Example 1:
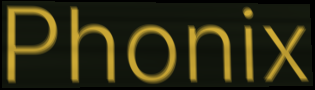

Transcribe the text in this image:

Phonix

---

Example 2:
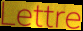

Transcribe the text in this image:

Lettre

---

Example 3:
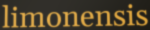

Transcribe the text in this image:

limonensis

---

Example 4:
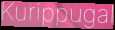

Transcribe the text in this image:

Kurippugal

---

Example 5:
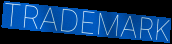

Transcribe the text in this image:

TRADEMARK